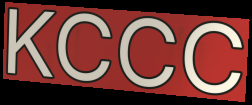
KCCC